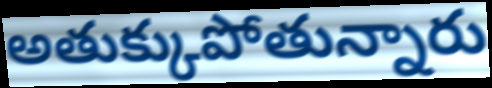
అతుక్కుపోతున్నారు